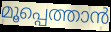
മൂപ്പെത്താൻ